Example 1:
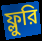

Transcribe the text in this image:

ফ্লুরি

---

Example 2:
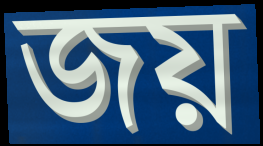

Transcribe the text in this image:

জয়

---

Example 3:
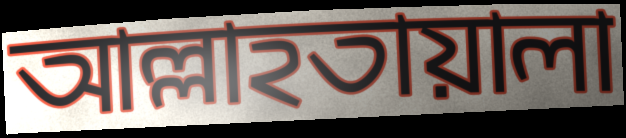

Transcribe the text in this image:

আল্লাহতায়ালা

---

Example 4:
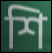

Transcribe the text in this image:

শি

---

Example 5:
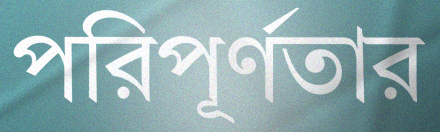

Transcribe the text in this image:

পরিপূর্ণতার